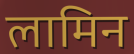
लामिन